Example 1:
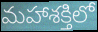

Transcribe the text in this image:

మహాశక్తిలో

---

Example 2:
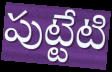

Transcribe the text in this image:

పుట్టేటి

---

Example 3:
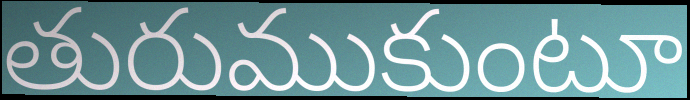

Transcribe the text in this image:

తురుముకుంటూ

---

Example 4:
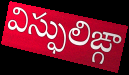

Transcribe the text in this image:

విస్ఫులిఙ్గా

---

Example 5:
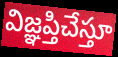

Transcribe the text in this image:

విజ్ఞప్తిచేస్తూ